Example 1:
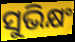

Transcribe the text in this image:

ସୁଭିକ୍ଷଂ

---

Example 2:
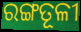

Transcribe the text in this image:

ରଙ୍ଗତୂଳୀ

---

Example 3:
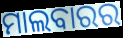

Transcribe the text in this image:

ମାଲବାରର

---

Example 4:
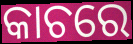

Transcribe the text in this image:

କାଚରେ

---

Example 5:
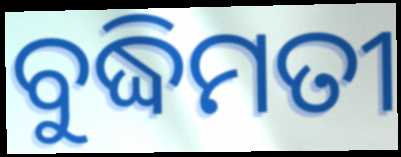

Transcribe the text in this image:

ବୁଦ୍ଧିମତୀ